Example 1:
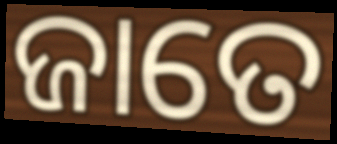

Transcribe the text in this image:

ଜାତେ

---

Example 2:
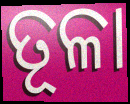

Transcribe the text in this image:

ତୂଳା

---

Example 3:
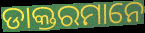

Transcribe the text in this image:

ଡାକ୍ତରମାନେ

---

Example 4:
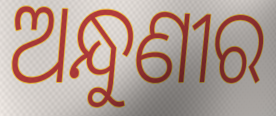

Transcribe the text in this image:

ଅନ୍ଧୁଣୀର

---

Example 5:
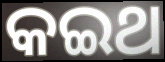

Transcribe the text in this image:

କଇଥ